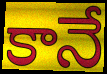
కానే